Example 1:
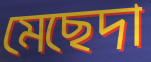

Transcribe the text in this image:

মেছেদা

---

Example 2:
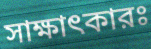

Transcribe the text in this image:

সাক্ষাৎকারঃ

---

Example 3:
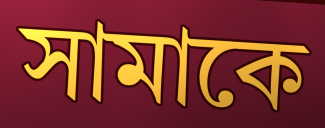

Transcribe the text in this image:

সামাকে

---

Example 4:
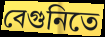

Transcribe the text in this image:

বেগুনিতে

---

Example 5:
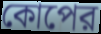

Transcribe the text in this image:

কোপের